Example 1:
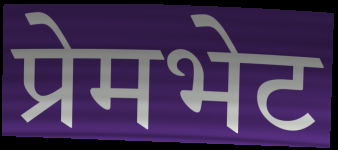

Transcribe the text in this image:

प्रेमभेट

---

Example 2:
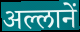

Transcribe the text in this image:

अल्लानें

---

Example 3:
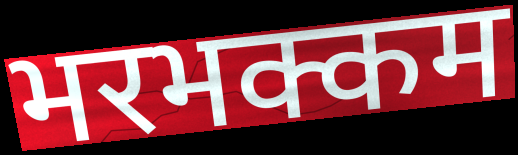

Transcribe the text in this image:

भरभक्कम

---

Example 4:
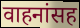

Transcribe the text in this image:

वाहनांसह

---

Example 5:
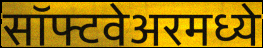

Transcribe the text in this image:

सॉफ्टवेअरमध्ये